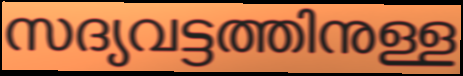
സദ്യവട്ടത്തിനുള്ള